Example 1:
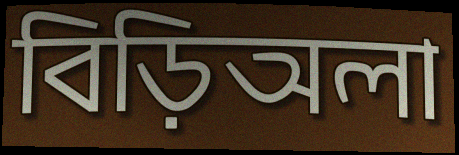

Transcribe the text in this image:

বিড়িঅলা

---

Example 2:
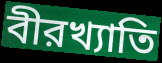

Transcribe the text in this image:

বীরখ্যাতি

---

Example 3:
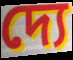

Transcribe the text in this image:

দ্যে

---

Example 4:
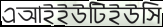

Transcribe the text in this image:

এআইইউটিইউসি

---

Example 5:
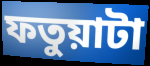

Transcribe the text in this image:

ফতুয়াটা